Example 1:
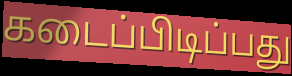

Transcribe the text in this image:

கடைப்பிடிப்பது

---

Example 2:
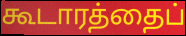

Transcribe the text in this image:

கூடாரத்தைப்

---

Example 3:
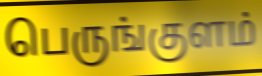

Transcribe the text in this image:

பெருங்குளம்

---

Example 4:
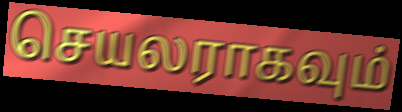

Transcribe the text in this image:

செயலராகவும்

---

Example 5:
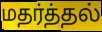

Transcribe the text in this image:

மதர்த்தல்